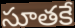
సూతకే